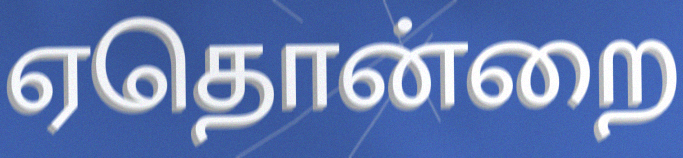
ஏதொன்றை